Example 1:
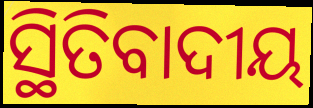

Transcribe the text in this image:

ସ୍ଥିତିବାଦୀୟ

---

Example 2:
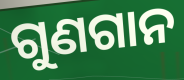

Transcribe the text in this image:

ଗୁଣଗାନ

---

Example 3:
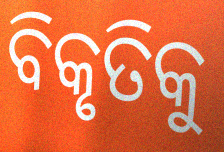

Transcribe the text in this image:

ବିକୃତିକୁ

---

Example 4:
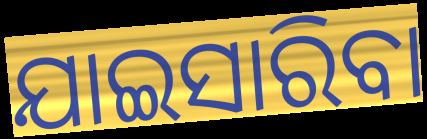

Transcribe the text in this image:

ଯାଇସାରିବା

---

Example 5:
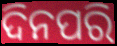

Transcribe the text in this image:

ଦିନପରି